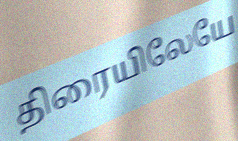
திரையிலேயே